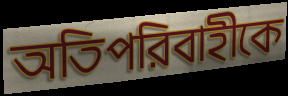
অতিপরিবাহীকে